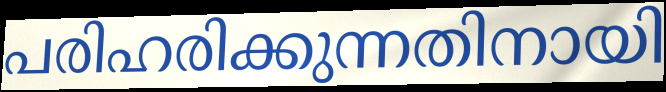
പരിഹരിക്കുന്നതിനായി